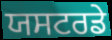
ਯਸਟਰਡੇ